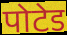
पोटेड